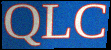
QLC